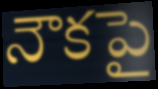
నౌకపై